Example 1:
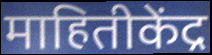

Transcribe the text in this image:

माहितीकेंद्र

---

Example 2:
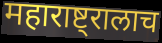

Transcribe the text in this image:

महाराष्ट्रालाच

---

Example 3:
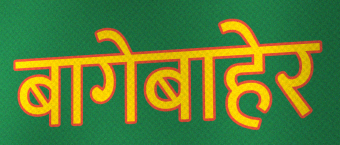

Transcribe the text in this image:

बागेबाहेर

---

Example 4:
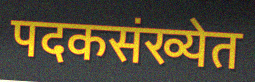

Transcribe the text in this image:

पदकसंख्येत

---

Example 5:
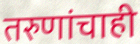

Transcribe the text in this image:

तरुणांचाही